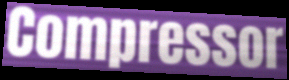
Compressor